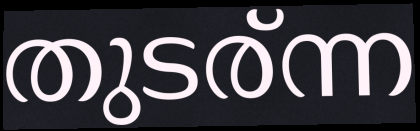
തുടര്ന്ന